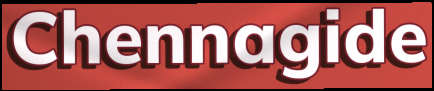
Chennagide